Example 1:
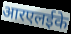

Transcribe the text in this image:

आरएलईके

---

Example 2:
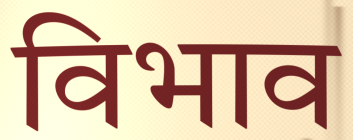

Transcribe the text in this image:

विभाव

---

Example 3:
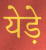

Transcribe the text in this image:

येड़े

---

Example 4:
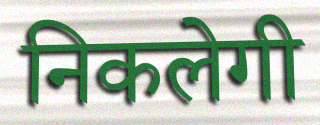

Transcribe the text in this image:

निकलेगी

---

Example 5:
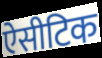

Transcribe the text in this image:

ऐसीटिक